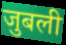
जुबली